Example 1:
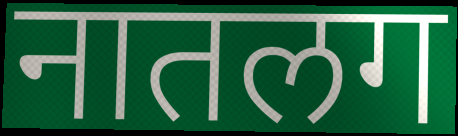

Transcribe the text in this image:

नातलग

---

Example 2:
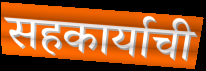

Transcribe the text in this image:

सहकार्याची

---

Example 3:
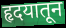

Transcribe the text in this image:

हृदयातून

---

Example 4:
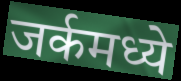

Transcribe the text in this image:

जर्कमध्ये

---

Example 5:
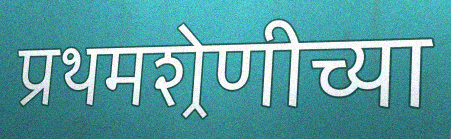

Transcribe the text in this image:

प्रथमश्रेणीच्या